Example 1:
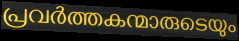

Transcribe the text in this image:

പ്രവർത്തകന്മാരുടെയും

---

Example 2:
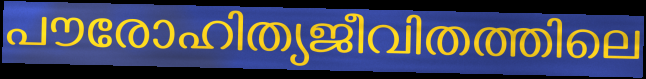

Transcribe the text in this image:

പൗരോഹിത്യജീവിതത്തിലെ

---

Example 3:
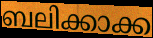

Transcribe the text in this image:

ബലിക്കാക്ക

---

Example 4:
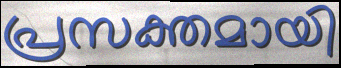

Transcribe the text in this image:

പ്രസക്തമായി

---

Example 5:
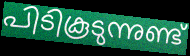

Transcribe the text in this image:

പിടികൂടുന്നുണ്ട്